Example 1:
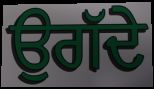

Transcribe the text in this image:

ਉਗੱਦੇ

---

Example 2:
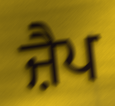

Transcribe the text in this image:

ਜ਼ੈਪ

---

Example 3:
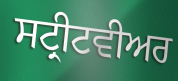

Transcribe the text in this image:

ਸਟ੍ਰੀਟਵੀਅਰ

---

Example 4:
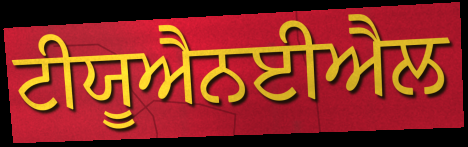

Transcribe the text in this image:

ਟੀਯੂਐਨਈਐਲ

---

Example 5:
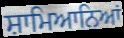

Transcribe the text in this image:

ਸ਼ਾਮਿਆਨਿਆਂ